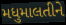
મધુમાલતીને